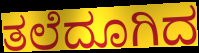
ತಲೆದೂಗಿದ